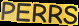
PERRS